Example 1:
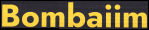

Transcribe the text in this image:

Bombaiim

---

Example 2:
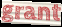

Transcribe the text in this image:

grant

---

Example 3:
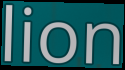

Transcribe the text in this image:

lion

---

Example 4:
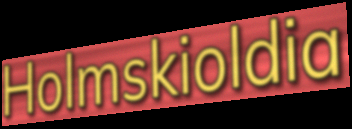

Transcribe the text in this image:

Holmskioldia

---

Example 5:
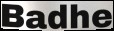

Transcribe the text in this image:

Badhe